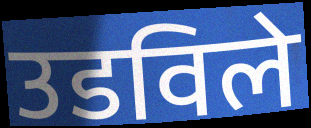
उडविले